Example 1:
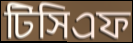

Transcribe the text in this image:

টিসিএফ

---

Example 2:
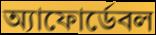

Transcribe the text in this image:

অ্যাফোর্ডেবল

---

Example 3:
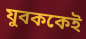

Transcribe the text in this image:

যুবককেই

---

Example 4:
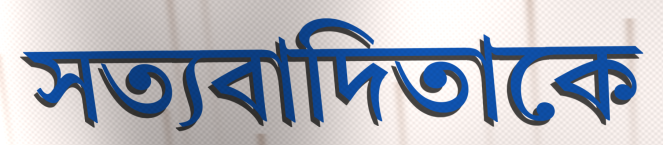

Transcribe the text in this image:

সত্যবাদিতাকে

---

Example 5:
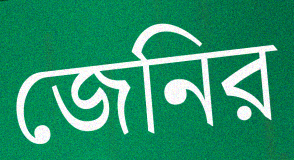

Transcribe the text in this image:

জেনির